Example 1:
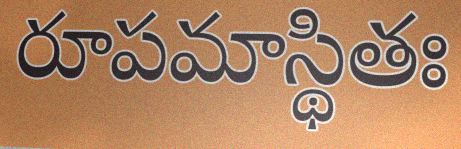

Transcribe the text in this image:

రూపమాస్థితః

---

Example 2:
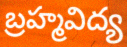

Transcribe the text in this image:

బ్రహ్మవిద్య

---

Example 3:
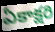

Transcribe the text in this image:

ఏకాక్షరి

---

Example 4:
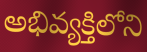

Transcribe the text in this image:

అభివ్యక్తిలోని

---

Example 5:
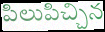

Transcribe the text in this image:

పిలుపిచ్చిన